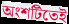
অংশটিতেই